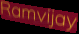
Ramvijay